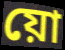
য়ো